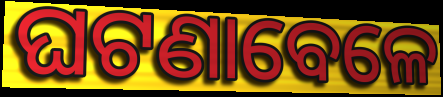
ଘଟଣାବେଳେ